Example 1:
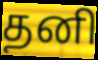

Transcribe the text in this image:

தனி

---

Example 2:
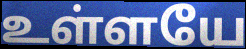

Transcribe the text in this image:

உள்ளயே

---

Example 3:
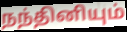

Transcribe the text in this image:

நந்தினியும்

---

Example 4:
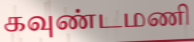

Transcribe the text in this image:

கவுண்டமணி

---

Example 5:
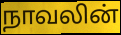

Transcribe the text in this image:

நாவலின்